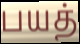
பயத்